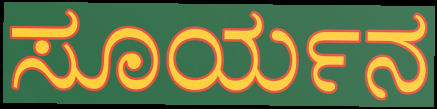
ಸೂರ್ಯನ